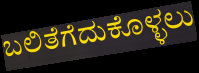
ಬಲಿತೆಗೆದುಕೊಳ್ಳಲು